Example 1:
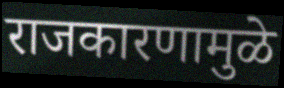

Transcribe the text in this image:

राजकारणामुळे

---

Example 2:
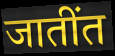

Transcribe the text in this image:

जातींत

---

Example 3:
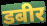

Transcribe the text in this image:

डबीर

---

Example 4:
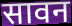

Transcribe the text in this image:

सावन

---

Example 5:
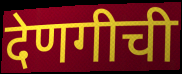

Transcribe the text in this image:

देणगीची